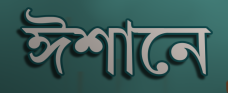
ঈশানে